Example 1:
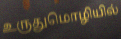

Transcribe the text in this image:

உருதுமொழியில்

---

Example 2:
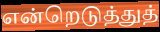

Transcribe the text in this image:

என்றெடுத்துத்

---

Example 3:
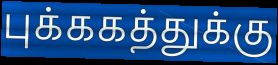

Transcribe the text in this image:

புக்ககத்துக்கு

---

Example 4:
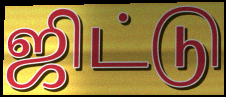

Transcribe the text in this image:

ஜிட்டு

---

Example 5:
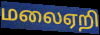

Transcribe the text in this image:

மலைஏறி